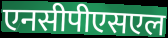
एनसीपीएसएल